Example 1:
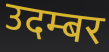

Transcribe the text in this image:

उदम्बर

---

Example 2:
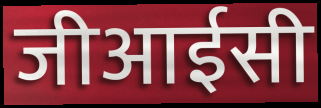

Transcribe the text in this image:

जीआईसी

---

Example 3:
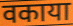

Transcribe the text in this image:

वकाया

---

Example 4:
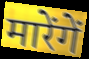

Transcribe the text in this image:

मारेंगें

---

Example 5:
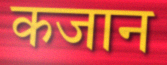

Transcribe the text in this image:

कजान